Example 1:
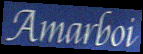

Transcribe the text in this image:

Amarboi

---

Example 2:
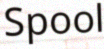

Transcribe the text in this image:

Spool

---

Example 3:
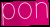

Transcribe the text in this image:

pon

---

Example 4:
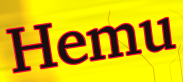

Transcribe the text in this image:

Hemu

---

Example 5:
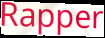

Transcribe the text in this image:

Rapper